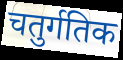
चतुर्गतिक